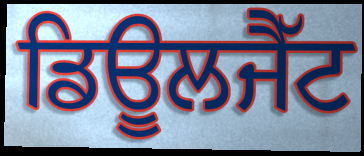
ਡਿਊਲਜੈੱਟ